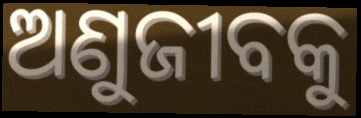
ଅଣୁଜୀବକୁ